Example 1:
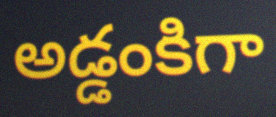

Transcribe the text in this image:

అడ్డంకిగా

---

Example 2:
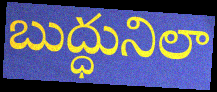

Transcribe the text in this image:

బుద్ధునిలా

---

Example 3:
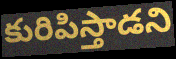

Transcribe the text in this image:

కురిపిస్తాడని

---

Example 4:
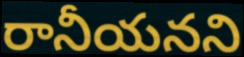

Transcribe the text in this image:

రానీయనని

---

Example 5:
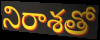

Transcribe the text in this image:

నిరాశతో